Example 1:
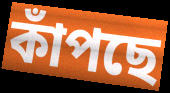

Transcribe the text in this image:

কাঁপছে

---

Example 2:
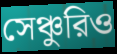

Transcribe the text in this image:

সেঞ্চুরিও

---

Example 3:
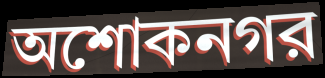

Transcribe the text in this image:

অশোকনগর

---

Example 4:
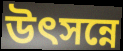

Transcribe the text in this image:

উৎসন্নে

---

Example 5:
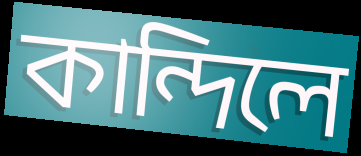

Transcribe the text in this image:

কান্দিলে